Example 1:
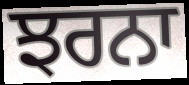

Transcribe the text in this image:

ਝਰਨਾ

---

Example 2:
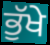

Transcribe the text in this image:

ਭੁੱਖੇ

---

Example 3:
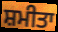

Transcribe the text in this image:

ਸ਼ਮੀਤਾ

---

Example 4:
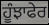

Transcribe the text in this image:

ਹੂੰਝਾਫੇਰ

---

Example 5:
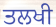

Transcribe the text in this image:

ਤਲਖੀ